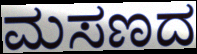
ಮಸಣದ